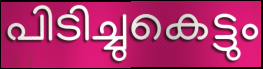
പിടിച്ചുകെട്ടും